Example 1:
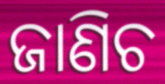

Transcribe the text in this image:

ଜାଣିଚ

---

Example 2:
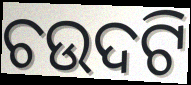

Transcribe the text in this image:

ଚଉଦଟି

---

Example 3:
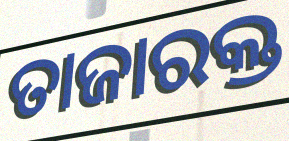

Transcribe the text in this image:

ତାଜାରକ୍ତ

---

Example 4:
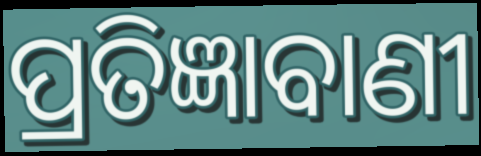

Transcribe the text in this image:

ପ୍ରତିଜ୍ଞାବାଣୀ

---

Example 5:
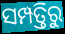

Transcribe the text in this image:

ସମ୍ପତ୍ତିରୁ